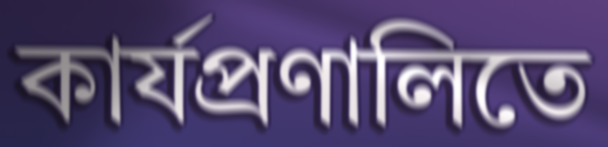
কার্যপ্রণালিতে